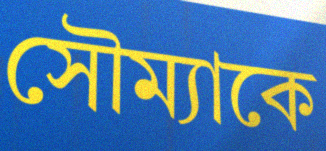
সৌম্যাকে